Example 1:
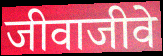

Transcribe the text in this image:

जीवाजीवे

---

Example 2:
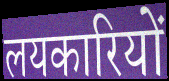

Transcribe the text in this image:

लयकारियों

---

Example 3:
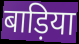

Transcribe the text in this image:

बाड़िया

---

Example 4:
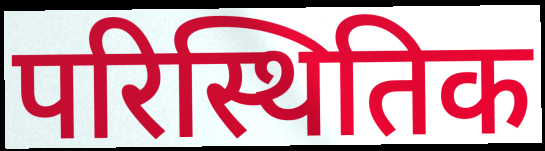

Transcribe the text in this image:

परिस्थितिक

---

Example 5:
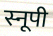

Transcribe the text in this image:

स्नूपी